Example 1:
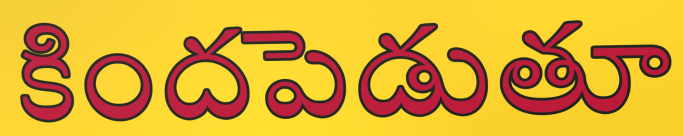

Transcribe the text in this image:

కిందపెడుతూ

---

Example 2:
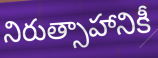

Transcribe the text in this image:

నిరుత్సాహానికీ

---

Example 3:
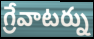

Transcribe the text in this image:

గ్రేవాటర్ను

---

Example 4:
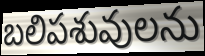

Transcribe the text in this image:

బలిపశువులను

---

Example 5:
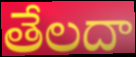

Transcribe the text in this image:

తేలదా